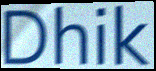
Dhik